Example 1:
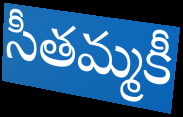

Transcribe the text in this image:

సీతమ్మకీ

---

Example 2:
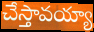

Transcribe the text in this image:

చేస్తావయ్యా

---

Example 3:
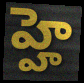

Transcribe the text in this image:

హ్హె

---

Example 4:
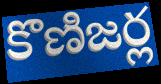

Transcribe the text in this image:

కొణిజర్ల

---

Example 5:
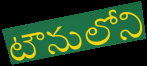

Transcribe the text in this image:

టౌనులోని